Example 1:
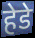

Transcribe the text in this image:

हेडे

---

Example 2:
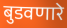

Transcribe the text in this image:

बुडवणारे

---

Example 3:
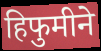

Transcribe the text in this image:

हिफुमीने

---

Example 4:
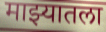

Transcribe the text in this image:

माझ्यातला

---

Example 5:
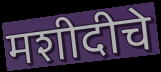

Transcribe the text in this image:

मशीदीचे